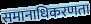
समानाधिकरणता